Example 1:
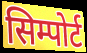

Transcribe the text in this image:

सिम्पोर्ट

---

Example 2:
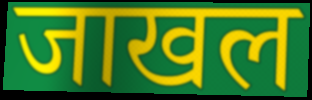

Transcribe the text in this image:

जाखल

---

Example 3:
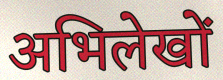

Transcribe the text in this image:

अभिलेखों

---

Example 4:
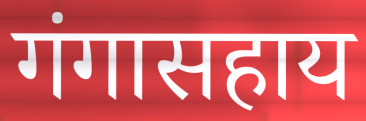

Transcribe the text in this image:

गंगासहाय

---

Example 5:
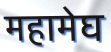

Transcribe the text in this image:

महामेघ